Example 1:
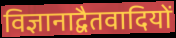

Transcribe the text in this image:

विज्ञानाद्वैतवादियों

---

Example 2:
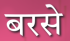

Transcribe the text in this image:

बरसे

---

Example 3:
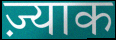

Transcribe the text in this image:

ज़्याक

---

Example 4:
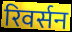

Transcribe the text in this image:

रिवर्सन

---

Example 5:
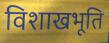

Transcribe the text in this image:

विशाखभूति